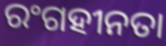
ରଂଗହୀନତା